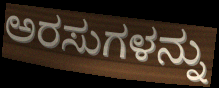
ಅರಸುಗಳನ್ನು